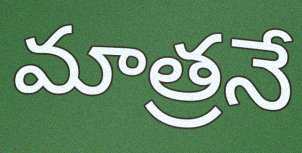
మాత్రనే